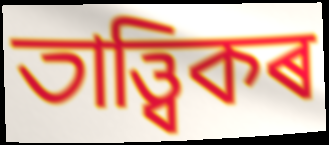
তাত্ত্বিকৰ